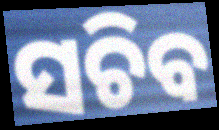
ସଚିବ